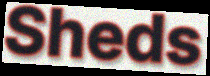
Sheds